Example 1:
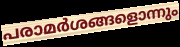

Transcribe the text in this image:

പരാമർശങ്ങളൊന്നും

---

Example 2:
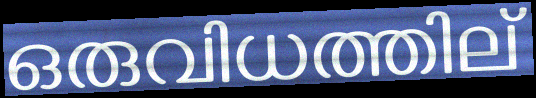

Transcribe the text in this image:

ഒരുവിധത്തില്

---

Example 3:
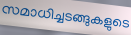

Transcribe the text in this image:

സമാധിച്ചടങ്ങുകളുടെ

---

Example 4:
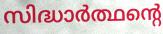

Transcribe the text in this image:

സിദ്ധാർത്ഥന്റെ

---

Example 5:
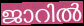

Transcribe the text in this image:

ജാറിൽ